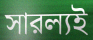
সারল্যই